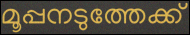
മൂപ്പനടുത്തേക്ക്